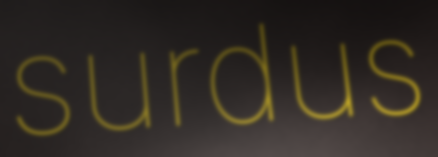
surdus